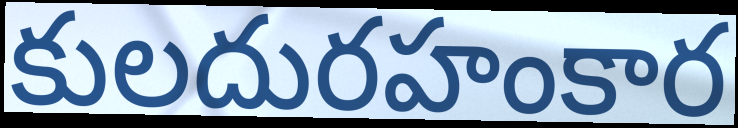
కులదురహంకార